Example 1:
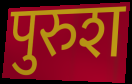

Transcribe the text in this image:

पुरुश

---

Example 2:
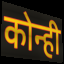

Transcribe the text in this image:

कोन्ही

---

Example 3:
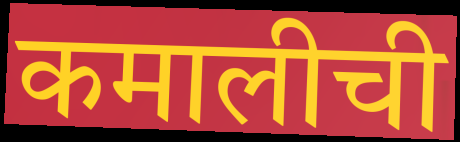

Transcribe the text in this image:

कमालीची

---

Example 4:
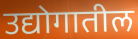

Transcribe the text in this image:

उद्योगातील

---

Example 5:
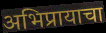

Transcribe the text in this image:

अभिप्रायाचा